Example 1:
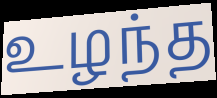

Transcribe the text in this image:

உழந்த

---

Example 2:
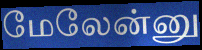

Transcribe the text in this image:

மேலேன்னு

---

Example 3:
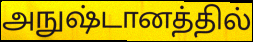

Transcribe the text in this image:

அநுஷ்டானத்தில்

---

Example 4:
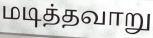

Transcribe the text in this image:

மடித்தவாறு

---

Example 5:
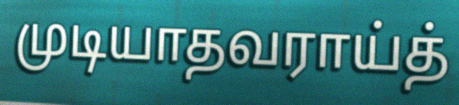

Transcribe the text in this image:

முடியாதவராய்த்